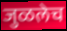
जुळलेच